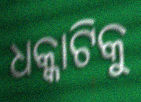
ଧକ୍କାଟିକୁ